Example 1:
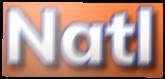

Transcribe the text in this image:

Natl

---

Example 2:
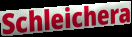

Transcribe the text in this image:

Schleichera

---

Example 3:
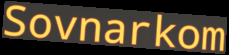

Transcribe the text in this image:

Sovnarkom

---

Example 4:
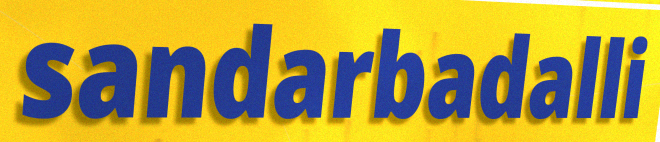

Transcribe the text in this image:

sandarbadalli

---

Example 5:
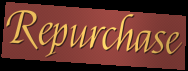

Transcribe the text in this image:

Repurchase